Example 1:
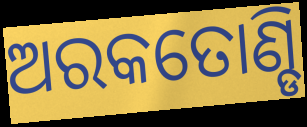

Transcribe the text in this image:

ଅରକତୋଣ୍ଡି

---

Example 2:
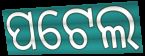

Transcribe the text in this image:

ପଟେଲ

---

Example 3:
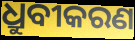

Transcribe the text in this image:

ଧ୍ରୁବୀକରଣ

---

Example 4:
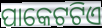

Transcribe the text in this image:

ପାକେଟଟିଏ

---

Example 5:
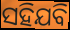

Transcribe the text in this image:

ସହିଯବି